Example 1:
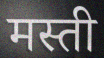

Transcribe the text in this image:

मस्ती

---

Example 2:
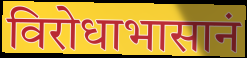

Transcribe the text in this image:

विरोधाभासानं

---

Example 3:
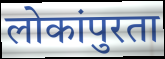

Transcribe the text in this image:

लोकांपुरता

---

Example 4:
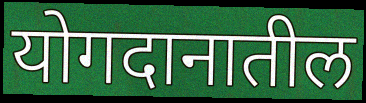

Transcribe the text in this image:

योगदानातील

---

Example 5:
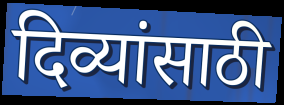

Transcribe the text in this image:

दिव्यांसाठी